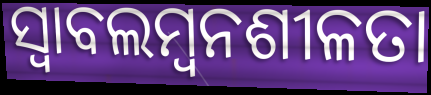
ସ୍ୱାବଲମ୍ବନଶୀଳତା